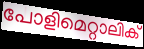
പോളിമെറ്റാലിക്